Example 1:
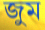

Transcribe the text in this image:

জুম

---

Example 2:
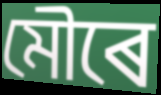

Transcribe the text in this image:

মৌৰে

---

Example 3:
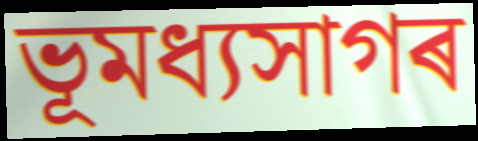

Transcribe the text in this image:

ভূমধ্যসাগৰ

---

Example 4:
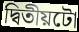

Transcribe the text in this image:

দ্বিতীয়টো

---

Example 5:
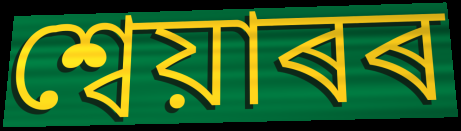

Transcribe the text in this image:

শ্বেয়াৰৰ